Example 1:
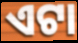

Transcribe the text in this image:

ଏଟା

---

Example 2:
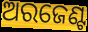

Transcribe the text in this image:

ଅରଜେଣ୍ଟ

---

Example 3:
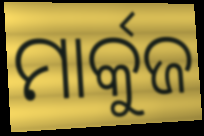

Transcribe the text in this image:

ମାର୍କୁଜ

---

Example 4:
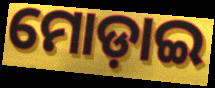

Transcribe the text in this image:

ମୋଡ଼ାଇ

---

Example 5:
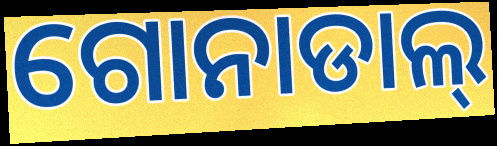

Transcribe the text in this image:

ଗୋନାଡାଲ୍